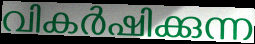
വികർഷിക്കുന്ന